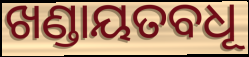
ଖଣ୍ଡାୟତବଧୂ